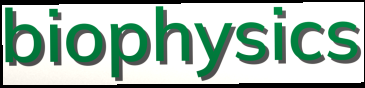
biophysics